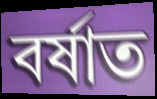
বৰ্ষাত